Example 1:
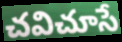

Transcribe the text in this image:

చవిచూసే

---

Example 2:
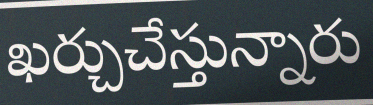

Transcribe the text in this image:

ఖర్చుచేస్తున్నారు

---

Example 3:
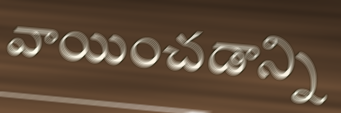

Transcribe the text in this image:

వాయించడాన్ని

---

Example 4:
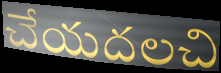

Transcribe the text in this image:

చేయదలచి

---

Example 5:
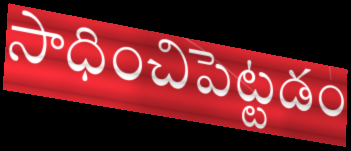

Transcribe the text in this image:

సాధించిపెట్టడం